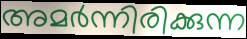
അമർന്നിരിക്കുന്ന